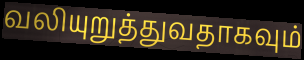
வலியுறுத்துவதாகவும்